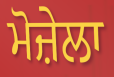
ਮੋਜ਼ੇਲਾ